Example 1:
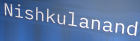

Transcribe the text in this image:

Nishkulanand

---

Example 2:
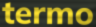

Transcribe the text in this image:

termo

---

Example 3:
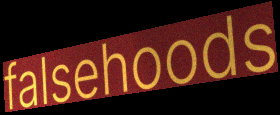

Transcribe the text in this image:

falsehoods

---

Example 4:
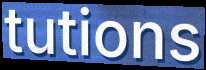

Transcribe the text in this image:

tutions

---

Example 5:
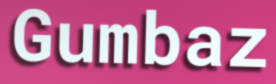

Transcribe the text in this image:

Gumbaz